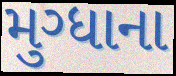
મુગ્ધાના